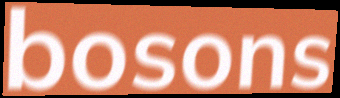
bosons